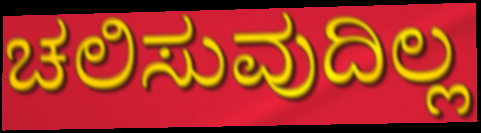
ಚಲಿಸುವುದಿಲ್ಲ